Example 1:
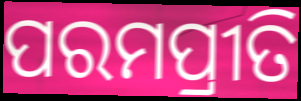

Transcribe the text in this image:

ପରମପ୍ରୀତି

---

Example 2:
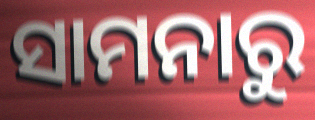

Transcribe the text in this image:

ସାମନାରୁ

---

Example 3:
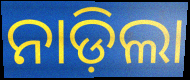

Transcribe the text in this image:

ନାଡ଼ିଲା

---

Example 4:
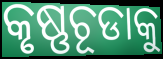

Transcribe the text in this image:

କୃଷ୍ଣଚୂଡାକୁ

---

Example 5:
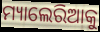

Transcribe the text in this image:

ମ୍ୟାଲେରିଆକୁ